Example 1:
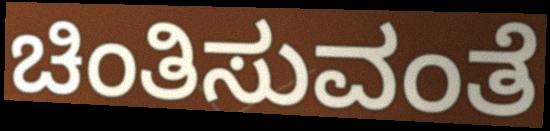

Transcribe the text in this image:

ಚಿಂತಿಸುವಂತೆ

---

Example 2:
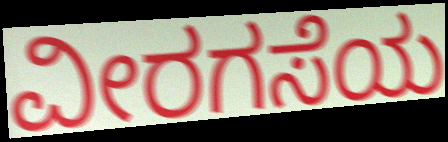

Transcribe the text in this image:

ವೀರಗಸೆಯ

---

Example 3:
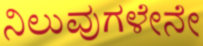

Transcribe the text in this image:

ನಿಲುವುಗಳೇನೇ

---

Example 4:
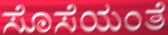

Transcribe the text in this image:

ಸೊಸೆಯಂತೆ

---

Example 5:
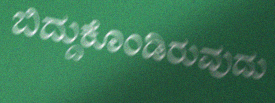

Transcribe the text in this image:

ಬಿದ್ದುಕೊಂಡಿರುವುದು